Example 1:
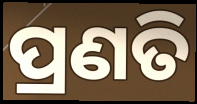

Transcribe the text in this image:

ପ୍ରଣତି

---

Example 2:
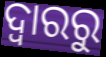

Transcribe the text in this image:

ଦ୍ଵାରରୁ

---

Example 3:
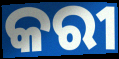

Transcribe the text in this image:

କରୀ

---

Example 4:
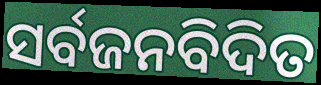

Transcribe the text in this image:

ସର୍ବଜନବିଦିତ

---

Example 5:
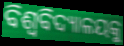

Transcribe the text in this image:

ବିଶ୍ବବିଦ୍ୟାଳୟକୁ